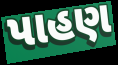
પાહણ